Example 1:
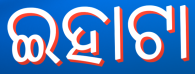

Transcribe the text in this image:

ଇହାଟା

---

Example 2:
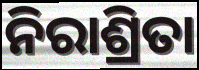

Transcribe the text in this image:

ନିରାଶ୍ରିତା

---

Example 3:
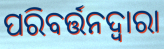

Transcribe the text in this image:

ପରିବର୍ତ୍ତନଦ୍ୱାରା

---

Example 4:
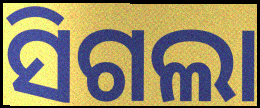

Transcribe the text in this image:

ସିଗଲା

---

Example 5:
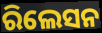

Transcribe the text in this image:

ରିଲେସନ